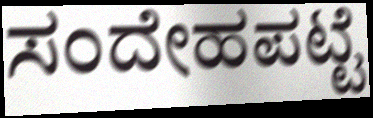
ಸಂದೇಹಪಟ್ಟೆ